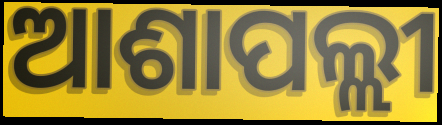
ଆଶାପଲ୍ଲୀ